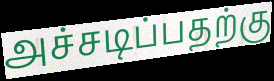
அச்சடிப்பதற்கு